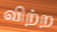
விற்ற